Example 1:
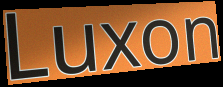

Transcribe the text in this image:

Luxon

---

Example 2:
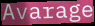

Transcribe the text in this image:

Avarage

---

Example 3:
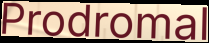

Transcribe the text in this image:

Prodromal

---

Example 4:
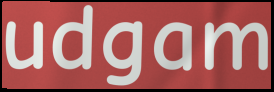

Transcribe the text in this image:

udgam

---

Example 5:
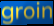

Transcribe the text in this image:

groin